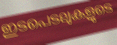
ഇടപെടലുകളുടെ